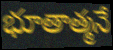
భూతాత్మనే